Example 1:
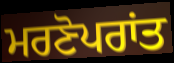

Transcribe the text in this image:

ਮਰਣੋਪਰਾਂਤ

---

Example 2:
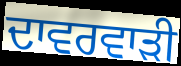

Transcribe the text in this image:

ਦਾਵਰਵਾੜੀ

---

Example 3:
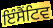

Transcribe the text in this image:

ਇੰਸੈਂਟਿਵ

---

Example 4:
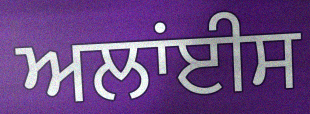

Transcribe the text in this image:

ਅਲਾਂਈਸ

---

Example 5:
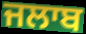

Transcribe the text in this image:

ਜਲਾਬ